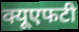
क्यूएफटी